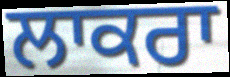
ਲਾਕਰਾ